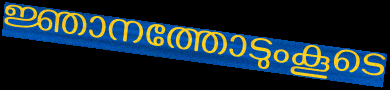
ജ്ഞാനത്തോടുംകൂടെ